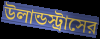
উলান্ডস্ট্রাসের